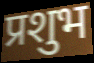
प्रशुभ